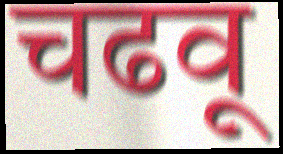
चढवू